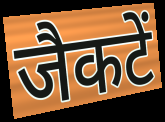
जैकटें